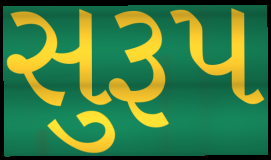
સુરૂપ